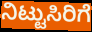
ನಿಟ್ಟುಸಿರಿಗೆ